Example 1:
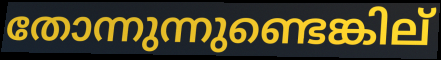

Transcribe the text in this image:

തോന്നുന്നുണ്ടെങ്കില്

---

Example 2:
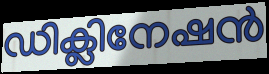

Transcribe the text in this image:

ഡിക്ലിനേഷൻ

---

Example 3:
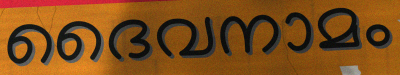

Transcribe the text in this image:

ദൈവനാമം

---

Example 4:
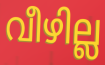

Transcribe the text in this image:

വീഴില്ല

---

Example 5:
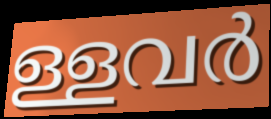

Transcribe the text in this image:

ള്ളവർ